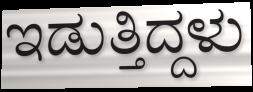
ಇಡುತ್ತಿದ್ದಳು